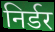
निर्डर